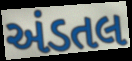
અંડતલ